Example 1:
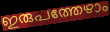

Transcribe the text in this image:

ഇരുപത്തേഴാം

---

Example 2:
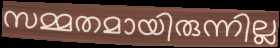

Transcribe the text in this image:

സമ്മതമായിരുന്നില്ല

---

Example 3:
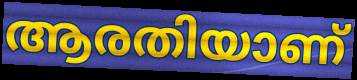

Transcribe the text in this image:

ആരതിയാണ്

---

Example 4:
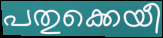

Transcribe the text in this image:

പതുക്കെയീ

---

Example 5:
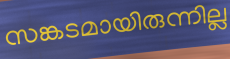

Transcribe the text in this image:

സങ്കടമായിരുന്നില്ല